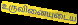
உருவினையுடைய